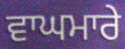
ਵਾਘਮਾਰੇ